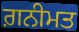
ਗ਼ਨੀਮਤ